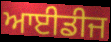
ਆਈਡੀਜ